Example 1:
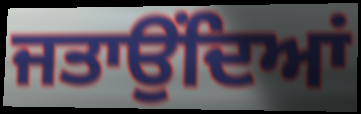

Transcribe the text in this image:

ਜਤਾਉੰਦਿਆਂ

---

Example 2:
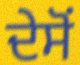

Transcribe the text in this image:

ਦੇਸੋਂ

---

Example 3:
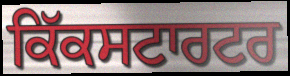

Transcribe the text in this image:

ਕਿੱਕਸਟਾਰਟਰ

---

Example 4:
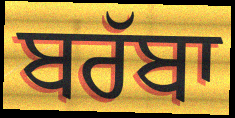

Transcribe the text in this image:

ਬਰੱਬਾ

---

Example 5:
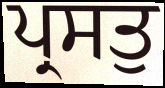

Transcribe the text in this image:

ਪ੍ਰਸਤੁ